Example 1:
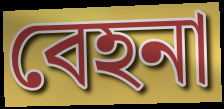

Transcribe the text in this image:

বেহনা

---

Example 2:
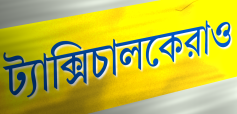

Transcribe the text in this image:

ট্যাক্সিচালকেরাও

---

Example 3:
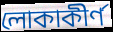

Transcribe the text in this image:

লোকাকীর্ণ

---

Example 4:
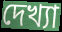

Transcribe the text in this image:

দেখ্যা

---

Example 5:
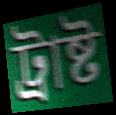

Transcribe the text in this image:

ট্রাষ্ট